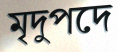
মৃদুপদে